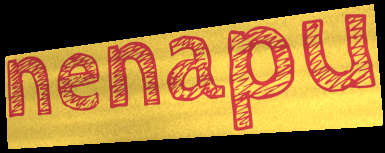
nenapu